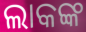
ଲାକଙ୍କ